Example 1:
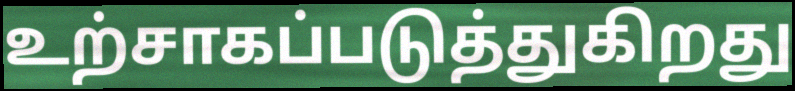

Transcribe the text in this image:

உற்சாகப்படுத்துகிறது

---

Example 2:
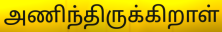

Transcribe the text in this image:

அணிந்திருக்கிறாள்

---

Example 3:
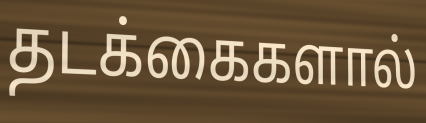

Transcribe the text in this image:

தடக்கைகளால்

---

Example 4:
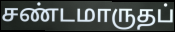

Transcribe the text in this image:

சண்டமாருதப்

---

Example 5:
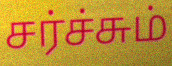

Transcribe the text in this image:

சர்ச்சும்